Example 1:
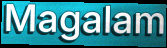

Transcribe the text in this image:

Magalam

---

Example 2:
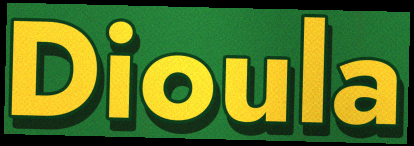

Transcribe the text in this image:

Dioula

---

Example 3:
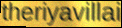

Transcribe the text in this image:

theriyavillai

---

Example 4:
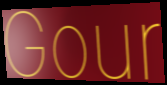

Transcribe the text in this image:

Gour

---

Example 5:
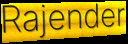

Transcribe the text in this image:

Rajender